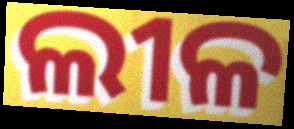
ଲୀଳ